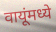
वायूंमध्ये